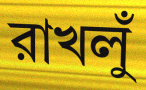
রাখলুঁ